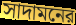
সাদামনের